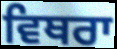
ਵਿਥਰਾ